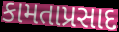
કામતાપ્રસાદ